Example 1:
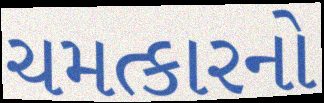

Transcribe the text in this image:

ચમત્કારનો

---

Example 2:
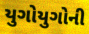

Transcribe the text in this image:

યુગોયુગોની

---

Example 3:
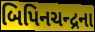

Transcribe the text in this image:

બિપિનચન્દ્રના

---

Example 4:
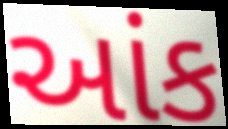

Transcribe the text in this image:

આંક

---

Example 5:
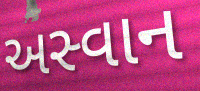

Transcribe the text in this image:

અસ્વાન